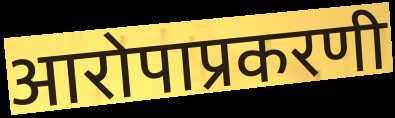
आरोपाप्रकरणी